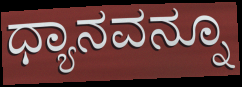
ಧ್ಯಾನವನ್ನೂ